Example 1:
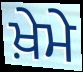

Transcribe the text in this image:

ਖ਼ੇਮੇ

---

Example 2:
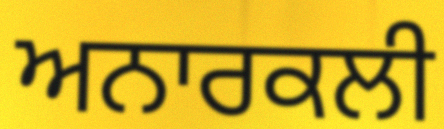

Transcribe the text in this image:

ਅਨਾਰਕਲੀ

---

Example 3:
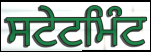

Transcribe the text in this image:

ਸਟੇਟਮਿੰਟ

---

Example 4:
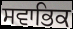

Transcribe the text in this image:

ਸਵਾਭਿਕ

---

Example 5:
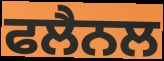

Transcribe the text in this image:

ਫਲੈਨਲ